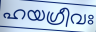
ഹയഗ്രീവഃ